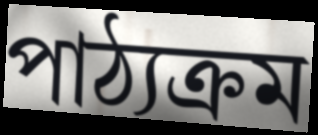
পাঠ্য়ক্ৰম